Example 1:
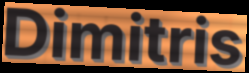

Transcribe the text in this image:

Dimitris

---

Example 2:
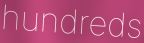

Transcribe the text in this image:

hundreds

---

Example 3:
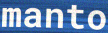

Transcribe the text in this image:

manto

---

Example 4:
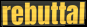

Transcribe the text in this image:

rebuttal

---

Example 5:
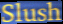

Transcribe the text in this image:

Slush